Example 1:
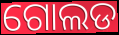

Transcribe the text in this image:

ଗୋଲଡ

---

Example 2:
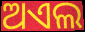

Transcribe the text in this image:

ଅଏଲ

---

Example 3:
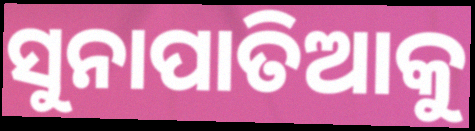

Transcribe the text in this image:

ସୁନାପାତିଆକୁ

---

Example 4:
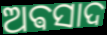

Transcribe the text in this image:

ଅଵସାଦ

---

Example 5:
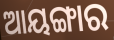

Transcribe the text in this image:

ଆୟଙ୍ଗାର